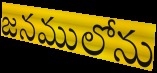
జనములోను